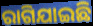
ରାଗିଯାଇଛି